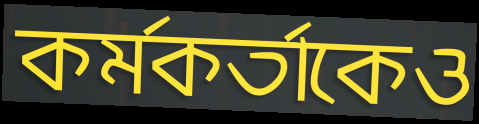
কর্মকর্তাকেও